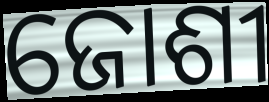
ଜୋଶୀ